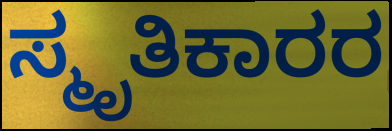
ಸ್ಮೃತಿಕಾರರ